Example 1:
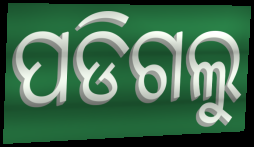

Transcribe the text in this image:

ପଡିଗଲୁ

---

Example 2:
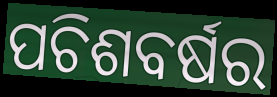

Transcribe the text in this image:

ପଚିଶବର୍ଷର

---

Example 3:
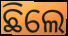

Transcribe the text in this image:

ଛିଲେ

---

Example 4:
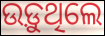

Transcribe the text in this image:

ଉଡ଼ୁଥିଲେ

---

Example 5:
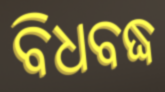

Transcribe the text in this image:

ବିଧବଦ୍ଧ